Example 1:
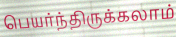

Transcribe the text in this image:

பெயர்ந்திருக்கலாம்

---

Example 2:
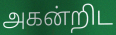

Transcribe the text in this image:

அகன்றிட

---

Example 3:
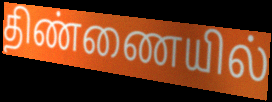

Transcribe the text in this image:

திண்ணையில்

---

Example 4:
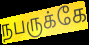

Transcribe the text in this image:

நபருக்கே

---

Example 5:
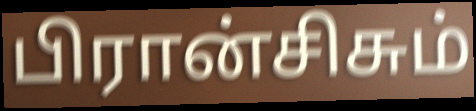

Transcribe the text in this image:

பிரான்சிசும்